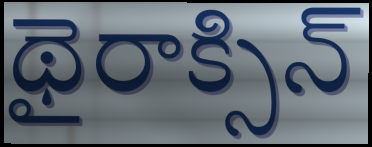
థైరాక్సిన్